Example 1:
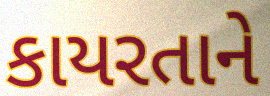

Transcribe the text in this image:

કાયરતાને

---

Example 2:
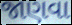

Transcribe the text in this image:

જાણવા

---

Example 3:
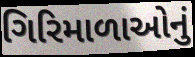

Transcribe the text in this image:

ગિરિમાળાઓનું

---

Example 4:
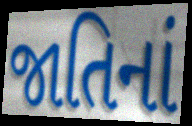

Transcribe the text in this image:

જાતિનાં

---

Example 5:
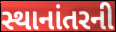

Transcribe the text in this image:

સ્થાનાંતરની